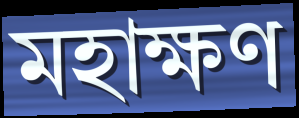
মহাক্ষণ